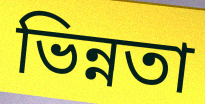
ভিন্নতা